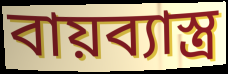
বায়ব্যাস্ত্র